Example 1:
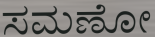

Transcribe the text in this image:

ಸಮಣೋ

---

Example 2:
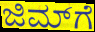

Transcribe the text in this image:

ಜಿಮ್‌ಗೆ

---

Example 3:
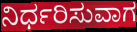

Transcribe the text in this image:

ನಿರ್ಧರಿಸುವಾಗ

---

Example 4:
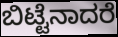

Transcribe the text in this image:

ಬಿಟ್ಟೆನಾದರೆ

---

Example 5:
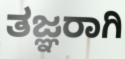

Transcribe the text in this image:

ತಜ್ಞರಾಗಿ